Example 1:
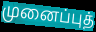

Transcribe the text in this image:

முனைப்புத்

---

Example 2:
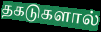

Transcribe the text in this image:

தகடுகளால்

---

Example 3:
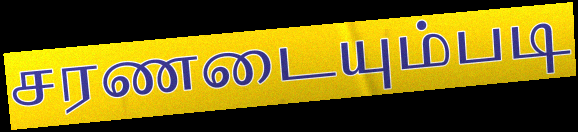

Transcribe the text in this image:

சரணடையும்படி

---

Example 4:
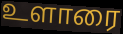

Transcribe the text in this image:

உளாரை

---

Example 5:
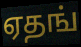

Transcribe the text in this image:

ஏதங்